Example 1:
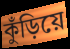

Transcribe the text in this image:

কুঁড়িয়ে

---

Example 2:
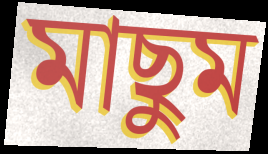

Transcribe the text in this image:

মাছুম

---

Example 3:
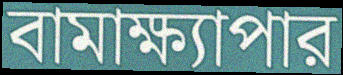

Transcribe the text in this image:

বামাক্ষ্যাপার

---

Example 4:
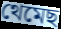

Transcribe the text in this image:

থেমেছ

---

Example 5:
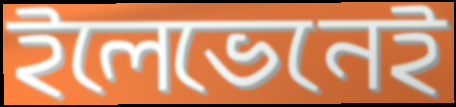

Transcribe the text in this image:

ইলেভেনেই